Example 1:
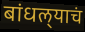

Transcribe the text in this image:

बांधल्याचं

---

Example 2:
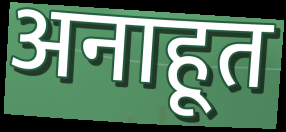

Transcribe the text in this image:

अनाहूत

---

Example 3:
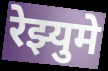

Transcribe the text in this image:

रेझ्युमे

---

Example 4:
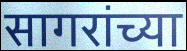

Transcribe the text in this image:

सागरांच्या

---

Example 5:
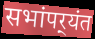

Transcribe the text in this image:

सभांपर्यंत